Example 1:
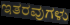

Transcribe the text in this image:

ಇತರವುಗಳು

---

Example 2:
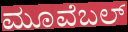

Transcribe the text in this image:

ಮೂವೆಬಲ್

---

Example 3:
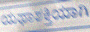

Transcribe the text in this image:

ಯಥಾಶಕ್ತಿಯಾಗಿ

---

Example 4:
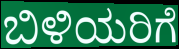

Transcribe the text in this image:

ಬಿಳಿಯರಿಗೆ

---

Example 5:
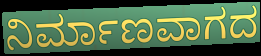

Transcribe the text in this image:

ನಿರ್ಮಾಣವಾಗದ